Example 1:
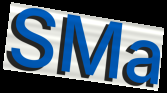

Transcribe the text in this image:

SMa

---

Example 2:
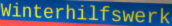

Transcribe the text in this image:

Winterhilfswerk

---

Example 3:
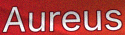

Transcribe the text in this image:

Aureus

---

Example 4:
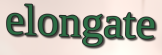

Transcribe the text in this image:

elongate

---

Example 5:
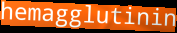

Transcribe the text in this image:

hemagglutinin